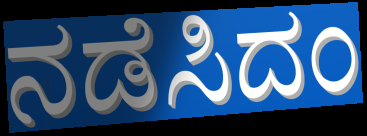
ನಡೆಸಿದಂ